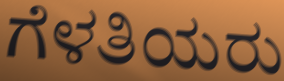
ಗೆಳತಿಯರು